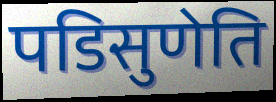
पडिसुणेति